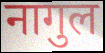
नागुल